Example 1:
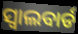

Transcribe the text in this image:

ସ୍ୱାଲବାର୍ଡ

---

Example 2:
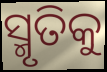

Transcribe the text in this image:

ସ୍ମୃତିକୁ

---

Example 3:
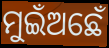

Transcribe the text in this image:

ମୁଇଁଅଛେଁ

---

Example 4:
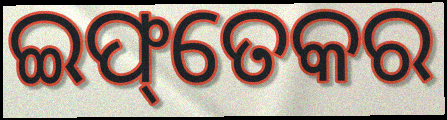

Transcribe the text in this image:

ଇଫ୍‌ତେକର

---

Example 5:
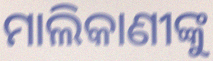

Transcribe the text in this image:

ମାଲିକାଣୀଙ୍କୁ